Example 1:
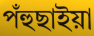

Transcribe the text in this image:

পঁহুছাইয়া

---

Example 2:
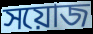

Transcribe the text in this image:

সয়োজ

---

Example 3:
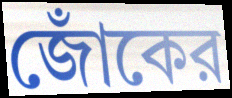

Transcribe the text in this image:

জোঁকের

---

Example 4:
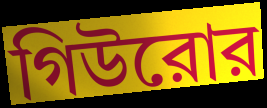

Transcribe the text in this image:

গিউরোর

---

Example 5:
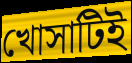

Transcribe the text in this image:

খোসাটিই